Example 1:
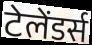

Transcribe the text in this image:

टेलेंडर्स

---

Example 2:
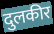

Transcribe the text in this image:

दुलकीर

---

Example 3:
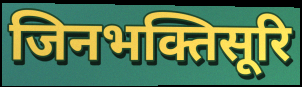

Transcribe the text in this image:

जिनभक्तिसूरि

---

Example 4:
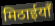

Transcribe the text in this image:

मिठाईयाँ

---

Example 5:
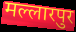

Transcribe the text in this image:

मल्लारपुर